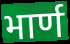
भार्ण